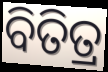
ବିତିତ୍ର